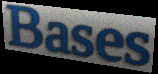
Bases